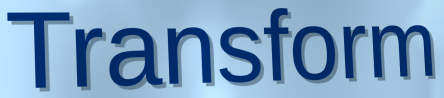
Transform